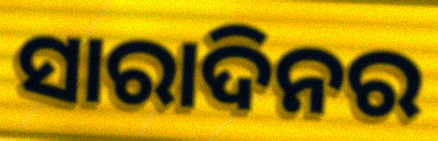
ସାରାଦିନର